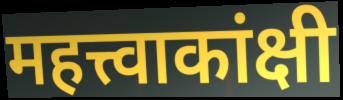
महत्त्वाकांक्षी